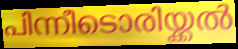
പിന്നീടൊരിയ്ക്കൽ